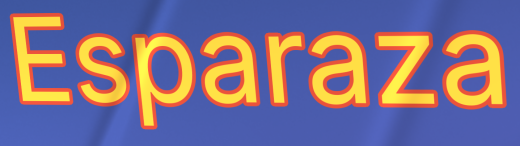
Esparaza